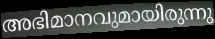
അഭിമാനവുമായിരുന്നു